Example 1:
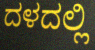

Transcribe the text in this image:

ದಳದಲ್ಲಿ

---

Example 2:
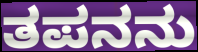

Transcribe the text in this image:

ತಪನನು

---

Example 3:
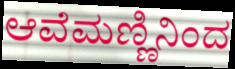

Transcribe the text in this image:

ಆವೆಮಣ್ಣಿನಿಂದ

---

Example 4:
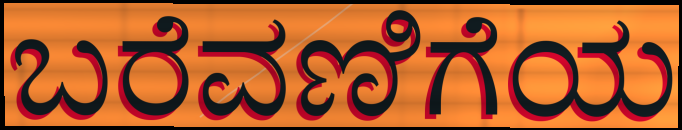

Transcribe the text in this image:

ಬರೆವಣಿಗೆಯ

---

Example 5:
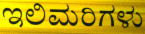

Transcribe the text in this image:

ಇಲಿಮರಿಗಳು